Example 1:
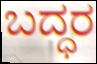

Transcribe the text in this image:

ಬದ್ಧರ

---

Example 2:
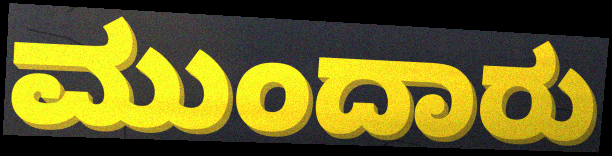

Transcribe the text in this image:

ಮುಂದಾರು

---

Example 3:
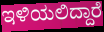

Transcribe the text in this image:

ಇಳಿಯಲಿದ್ದಾರೆ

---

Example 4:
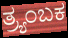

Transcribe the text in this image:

ತ್ರ್ಯಂಬಕ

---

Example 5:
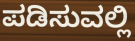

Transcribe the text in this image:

ಪಡಿಸುವಲ್ಲಿ